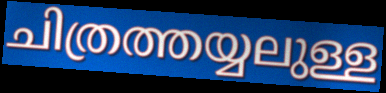
ചിത്രത്തയ്യലുള്ള